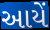
આયેં